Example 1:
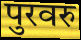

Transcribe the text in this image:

पुरवरु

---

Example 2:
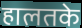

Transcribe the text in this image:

हालतके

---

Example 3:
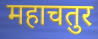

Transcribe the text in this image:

महाचतुर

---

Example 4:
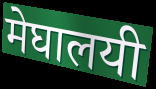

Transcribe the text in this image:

मेघालयी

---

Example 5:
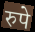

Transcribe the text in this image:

रुपे